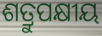
ଶତ୍ରୁପକ୍ଷୀୟ